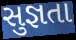
સુજ્ઞતા